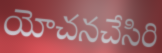
యోచనచేసిరి